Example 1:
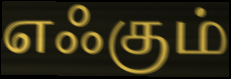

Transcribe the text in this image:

எஃகும்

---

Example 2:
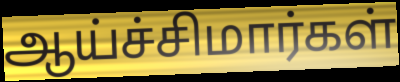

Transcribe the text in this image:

ஆய்ச்சிமார்கள்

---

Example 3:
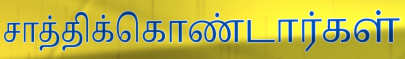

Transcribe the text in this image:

சாத்திக்கொண்டார்கள்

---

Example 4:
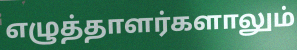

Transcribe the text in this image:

எழுத்தாளர்களாலும்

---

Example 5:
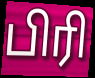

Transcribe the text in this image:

பிரி